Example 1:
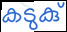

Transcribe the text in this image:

കടുകു്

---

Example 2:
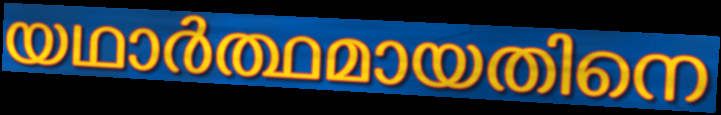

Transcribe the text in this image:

യഥാർത്ഥമായതിനെ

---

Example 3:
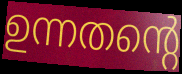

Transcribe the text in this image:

ഉന്നതന്റെ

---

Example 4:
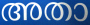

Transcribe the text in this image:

അതാ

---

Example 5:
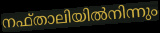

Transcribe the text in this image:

നഫ്താലിയിൽനിന്നും